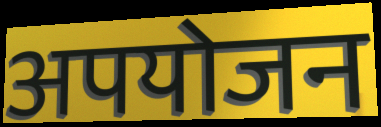
अपयोजन